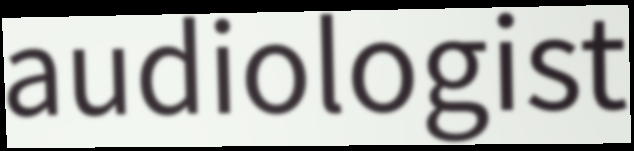
audiologist